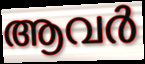
ആവർ